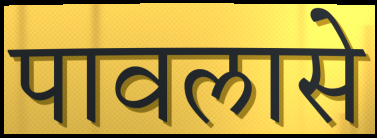
पावलासे